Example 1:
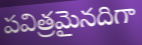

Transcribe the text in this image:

పవిత్రమైనదిగా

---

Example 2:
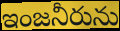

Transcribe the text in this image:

ఇంజనీరును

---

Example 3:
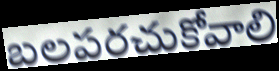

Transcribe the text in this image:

బలపరచుకోవాలి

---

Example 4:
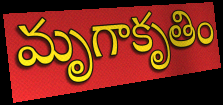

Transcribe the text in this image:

మృగాకృతిం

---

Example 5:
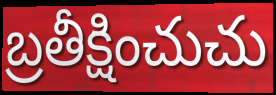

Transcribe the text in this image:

బ్రతీక్షించుచు